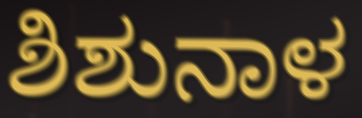
ಶಿಶುನಾಳ